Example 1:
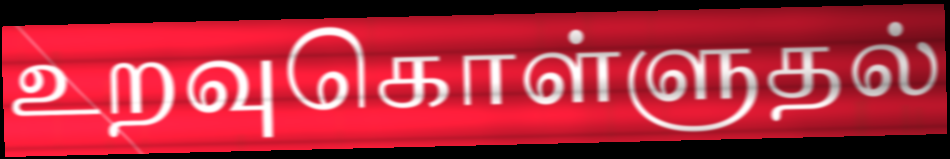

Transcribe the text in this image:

உறவுகொள்ளுதல்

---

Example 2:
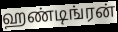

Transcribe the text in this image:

ஹண்டிங்ரன்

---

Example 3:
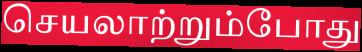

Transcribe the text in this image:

செயலாற்றும்போது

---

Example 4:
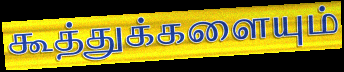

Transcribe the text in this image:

கூத்துக்களையும்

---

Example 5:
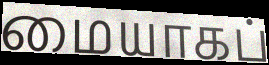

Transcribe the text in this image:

மையாகப்